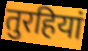
तुरहियां